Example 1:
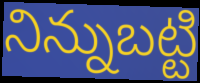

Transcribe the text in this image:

నిన్నుబట్టి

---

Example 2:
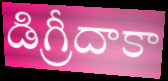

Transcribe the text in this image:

డిగ్రీదాకా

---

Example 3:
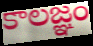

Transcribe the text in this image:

కాలజ్ఞం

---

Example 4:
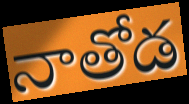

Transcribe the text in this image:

నాతోడ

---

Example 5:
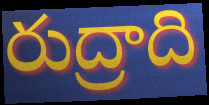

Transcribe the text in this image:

రుద్రాది